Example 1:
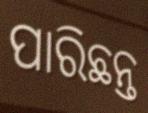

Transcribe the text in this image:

ପାରିଛନ୍ତ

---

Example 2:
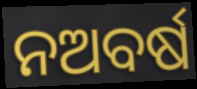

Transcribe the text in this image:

ନଅବର୍ଷ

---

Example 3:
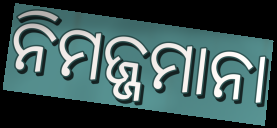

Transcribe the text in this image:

ନିମଜ୍ଜମାନା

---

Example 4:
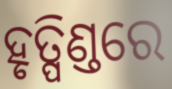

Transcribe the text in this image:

ହୃତ୍ପିଣ୍ଡରେ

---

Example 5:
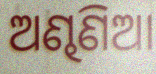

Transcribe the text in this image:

ଅଣ୍ଢଣିଆ